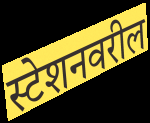
स्टेशनवरील